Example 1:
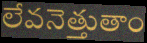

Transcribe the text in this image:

లేవనెత్తుతాం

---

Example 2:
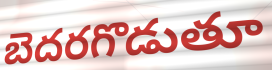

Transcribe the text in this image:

బెదరగొడుతూ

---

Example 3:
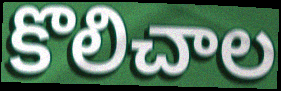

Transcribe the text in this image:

కొలిచాల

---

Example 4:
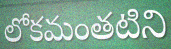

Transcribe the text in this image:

లోకమంతటిని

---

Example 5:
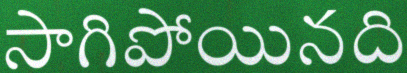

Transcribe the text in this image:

సాగిపోయినది